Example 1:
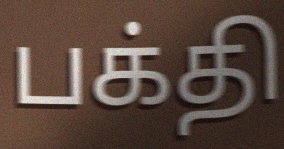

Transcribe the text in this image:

பக்தி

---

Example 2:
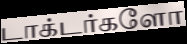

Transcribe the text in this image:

டாக்டர்களோ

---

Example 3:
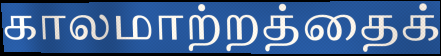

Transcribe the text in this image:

காலமாற்றத்தைக்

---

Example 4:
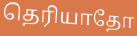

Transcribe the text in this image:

தெரியாதோ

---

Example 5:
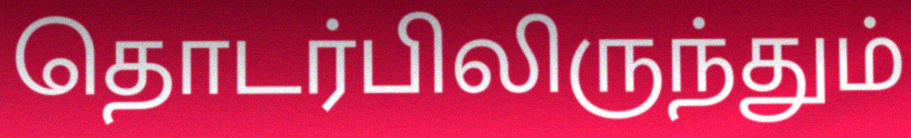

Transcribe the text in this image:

தொடர்பிலிருந்தும்